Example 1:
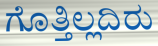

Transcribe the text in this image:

ಗೊತ್ತಿಲ್ಲದಿರು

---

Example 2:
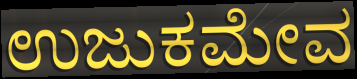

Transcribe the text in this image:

ಉಜುಕಮೇವ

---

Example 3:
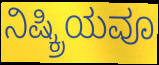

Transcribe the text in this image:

ನಿಷ್ಕ್ರಿಯವೂ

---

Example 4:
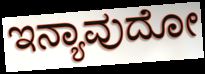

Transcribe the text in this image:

ಇನ್ಯಾವುದೋ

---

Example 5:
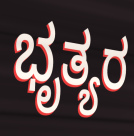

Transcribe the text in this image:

ಭೃತ್ಯರ